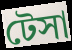
টেসা